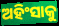
ଅହିଂସାକୁ